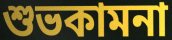
শুভকামনা